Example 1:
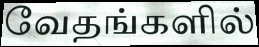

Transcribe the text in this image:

வேதங்களில்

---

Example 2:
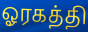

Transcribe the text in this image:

ஓரகத்தி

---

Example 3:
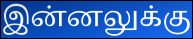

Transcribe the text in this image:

இன்னலுக்கு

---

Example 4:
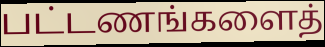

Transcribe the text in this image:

பட்டணங்களைத்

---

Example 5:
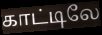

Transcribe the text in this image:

காட்டிலே